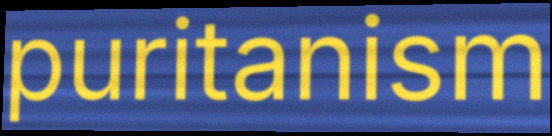
puritanism